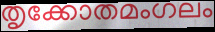
തൃക്കോതമംഗലം